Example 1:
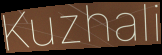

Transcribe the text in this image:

Kuzhali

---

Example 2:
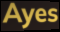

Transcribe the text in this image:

Ayes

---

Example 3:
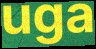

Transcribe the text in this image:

uga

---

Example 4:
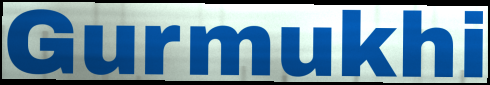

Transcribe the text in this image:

Gurmukhi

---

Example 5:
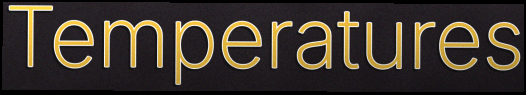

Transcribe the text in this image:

Temperatures